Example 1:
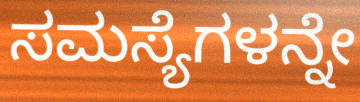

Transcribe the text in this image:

ಸಮಸ್ಯೆಗಳನ್ನೇ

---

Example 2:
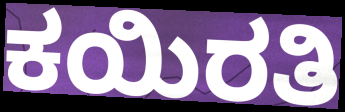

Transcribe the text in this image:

ಕಯಿರತಿ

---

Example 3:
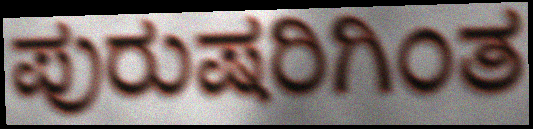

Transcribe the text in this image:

ಪುರುಷರಿಗಿಂತ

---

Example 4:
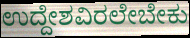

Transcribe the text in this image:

ಉದ್ದೇಶವಿರಲೇಬೇಕು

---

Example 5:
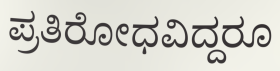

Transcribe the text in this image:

ಪ್ರತಿರೋಧವಿದ್ದರೂ